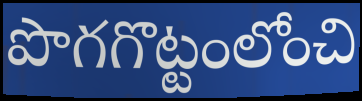
పొగగొట్టంలోంచి